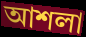
আশলা